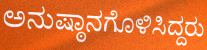
ಅನುಷ್ಠಾನಗೊಳಿಸಿದ್ದರು